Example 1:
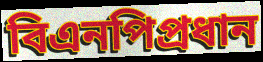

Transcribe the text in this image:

বিএনপিপ্রধান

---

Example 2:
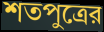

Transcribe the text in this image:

শতপুত্রের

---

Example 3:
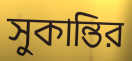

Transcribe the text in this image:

সুকান্তির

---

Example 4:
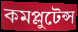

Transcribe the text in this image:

কমপ্লুটেন্স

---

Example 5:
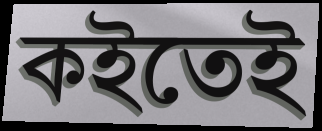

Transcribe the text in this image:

কইতেই